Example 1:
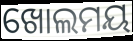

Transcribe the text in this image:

ଖୋଲମୟ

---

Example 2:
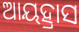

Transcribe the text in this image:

ଆୟହ୍ରାସ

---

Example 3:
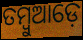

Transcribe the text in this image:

ତମ୍ବୁଆଡ଼େ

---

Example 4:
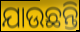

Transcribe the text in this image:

ଯାଉଛନ୍ତି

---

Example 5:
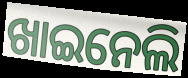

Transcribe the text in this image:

ଖାଇନେଲି